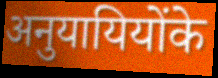
अनुयायियोंके